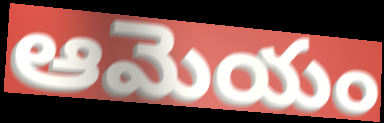
ఆమెయం